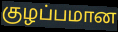
குழப்பமான